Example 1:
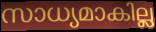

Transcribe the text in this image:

സാധ്യമാകില്ല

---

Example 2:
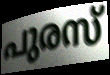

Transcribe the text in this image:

പുരസ്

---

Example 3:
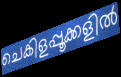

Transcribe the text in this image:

ചെകിളപ്പൂക്കളിൽ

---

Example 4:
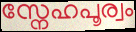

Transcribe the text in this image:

സ്നേഹപൂര്വം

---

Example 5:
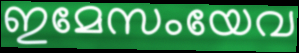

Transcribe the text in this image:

ഇമേസംയേവ